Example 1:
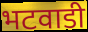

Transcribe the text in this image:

भटवाडी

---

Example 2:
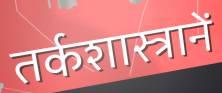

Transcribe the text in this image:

तर्कशास्त्रानें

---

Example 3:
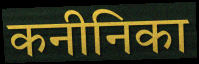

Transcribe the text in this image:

कनीनिका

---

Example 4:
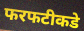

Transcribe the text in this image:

फरफटीकडे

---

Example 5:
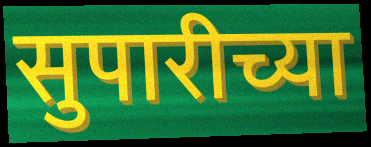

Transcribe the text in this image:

सुपारीच्या